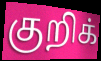
குறிக்